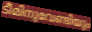
ടീമിനുവേണ്ടിയും